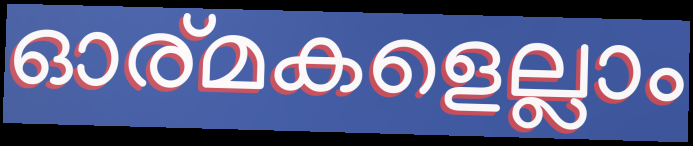
ഓര്മകളെല്ലാം